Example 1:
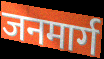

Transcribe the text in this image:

जनमार्ग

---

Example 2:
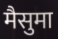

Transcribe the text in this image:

मैसुमा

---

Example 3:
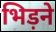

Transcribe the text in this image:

भिड़ने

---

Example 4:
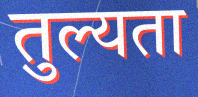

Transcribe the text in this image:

तुल्यता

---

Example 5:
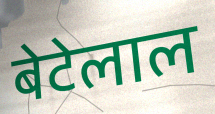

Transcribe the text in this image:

बेटेलाल